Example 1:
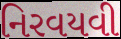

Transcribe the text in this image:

નિરવયવી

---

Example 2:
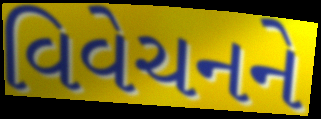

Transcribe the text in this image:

વિવેચનને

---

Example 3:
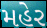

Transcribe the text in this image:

મહેર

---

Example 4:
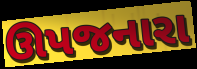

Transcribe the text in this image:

ઊપજનારા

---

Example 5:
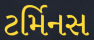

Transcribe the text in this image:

ટર્મિનસ